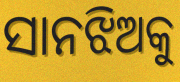
ସାନଝିଅକୁ